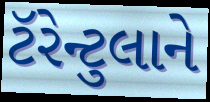
ટૅરેન્ટુલાને